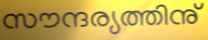
സൗന്ദര്യത്തിനു്